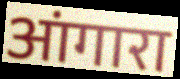
आंगारा